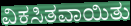
ವಿಕಸಿತವಾಯಿತು